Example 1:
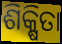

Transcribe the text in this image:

ଶିକ୍ଷିତା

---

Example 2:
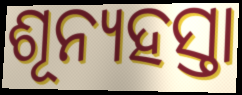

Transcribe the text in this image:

ଶୂନ୍ୟହସ୍ତା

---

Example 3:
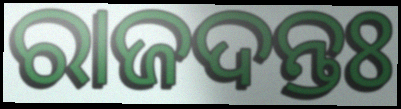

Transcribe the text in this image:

ରାଜଦନ୍ତଃ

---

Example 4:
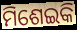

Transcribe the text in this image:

ମିଶେଇକି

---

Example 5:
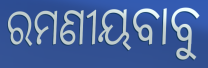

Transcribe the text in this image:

ରମଣୀୟବାବୁ